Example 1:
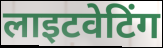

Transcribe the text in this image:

लाइटवेटिंग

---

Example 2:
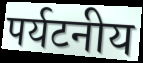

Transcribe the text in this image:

पर्यटनीय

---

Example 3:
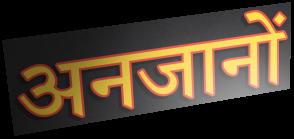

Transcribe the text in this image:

अनजानों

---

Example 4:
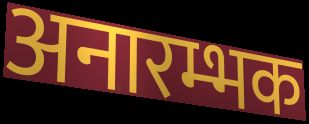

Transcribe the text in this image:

अनारम्भक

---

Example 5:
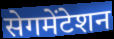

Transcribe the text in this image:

सेगमेंटेशन